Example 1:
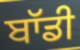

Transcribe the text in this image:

ਬਾੱਡੀ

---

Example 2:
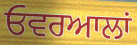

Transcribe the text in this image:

ਓਵਰਆਲਾਂ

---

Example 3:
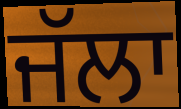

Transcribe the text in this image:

ਜੱਲਾ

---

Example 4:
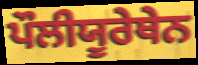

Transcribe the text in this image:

ਪੌਲੀਯੂਰੇਥੇਨ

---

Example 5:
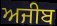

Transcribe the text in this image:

ਅਜੀਬ